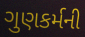
ગુણકર્મની